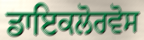
ਡਾਇਕਲੋਰਵੋਸ